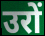
उरों